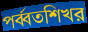
পর্ব্বতশিখর